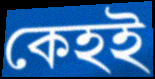
কেহই